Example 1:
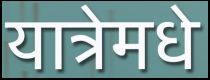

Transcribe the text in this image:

यात्रेमधे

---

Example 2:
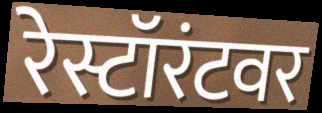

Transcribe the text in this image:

रेस्टॉरंटवर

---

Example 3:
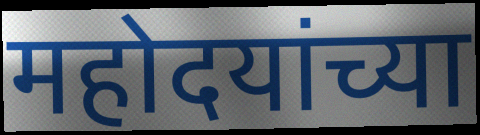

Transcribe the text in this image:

महोदयांच्या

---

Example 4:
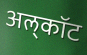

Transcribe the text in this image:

अल्कॉट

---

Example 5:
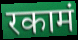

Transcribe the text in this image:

रकामं